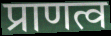
प्राणत्व